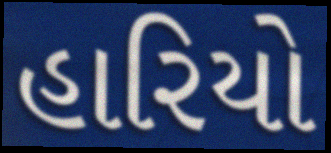
હારિયો